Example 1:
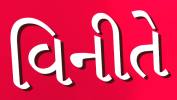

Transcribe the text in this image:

વિનીતે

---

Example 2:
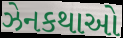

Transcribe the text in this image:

ઝેનકથાઓ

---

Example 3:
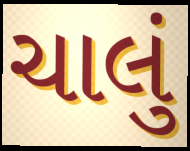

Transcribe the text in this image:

ચાલું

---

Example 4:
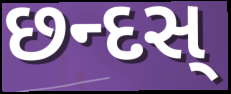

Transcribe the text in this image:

છન્દસ્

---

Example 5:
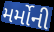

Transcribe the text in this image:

મર્મોની